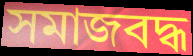
সমাজবদ্ধ